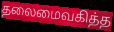
தலைமைவகித்த